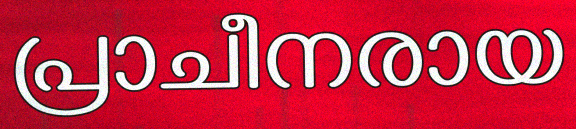
പ്രാചീനരായ